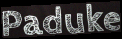
Paduke